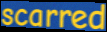
scarred